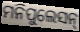
ମନିପୁଲେସନ୍